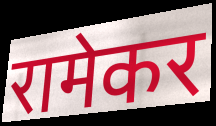
रामेकर